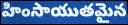
హింసాయుతమైన